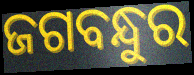
ଜଗବନ୍ଧୁର